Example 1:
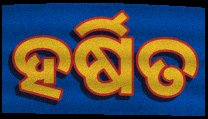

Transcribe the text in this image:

ହର୍ଷିତ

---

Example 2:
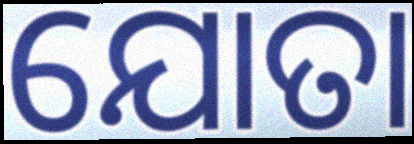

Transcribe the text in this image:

ଯୋତା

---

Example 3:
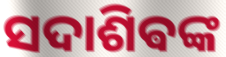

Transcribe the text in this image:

ସଦାଶିଵଙ୍କ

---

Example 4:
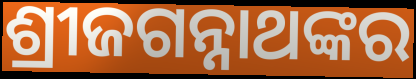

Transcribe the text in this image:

ଶ୍ରୀଜଗନ୍ନାଥଙ୍କର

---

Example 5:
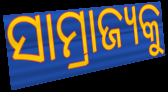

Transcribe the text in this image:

ସାମ୍ରାଜ୍ୟକୁ